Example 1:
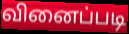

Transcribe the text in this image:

வினைப்படி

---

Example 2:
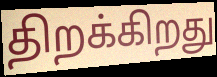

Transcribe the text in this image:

திறக்கிறது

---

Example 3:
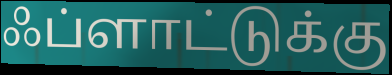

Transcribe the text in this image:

ஃப்ளாட்டுக்கு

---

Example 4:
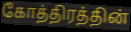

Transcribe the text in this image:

கோத்திரத்தின்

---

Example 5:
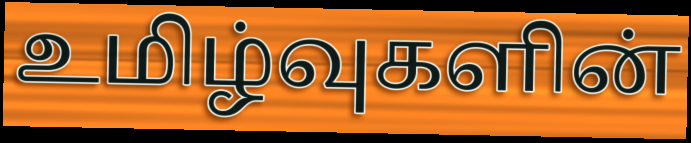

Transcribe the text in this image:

உமிழ்வுகளின்